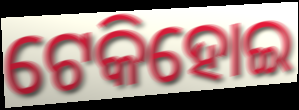
ଟେକିହୋଇ